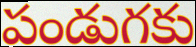
పండుగకు